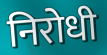
निरोधी